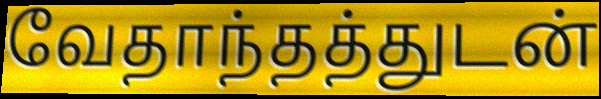
வேதாந்தத்துடன்